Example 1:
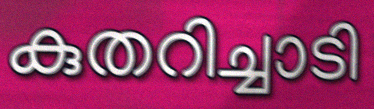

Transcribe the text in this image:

കുതറിച്ചാടി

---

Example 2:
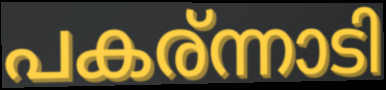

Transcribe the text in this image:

പകര്ന്നാടി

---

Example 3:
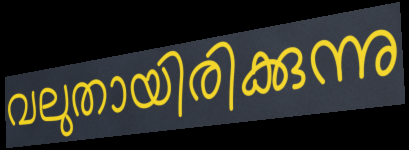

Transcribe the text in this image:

വലുതായിരിക്കുന്നു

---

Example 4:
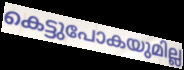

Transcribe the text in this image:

കെട്ടുപോകയുമില്ല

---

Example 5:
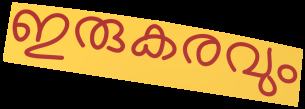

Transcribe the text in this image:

ഇരുകരവും